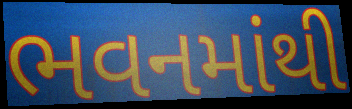
ભવનમાંથી